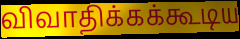
விவாதிக்கக்கூடிய